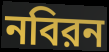
নবিরন